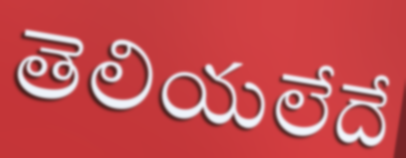
తెలియలేదే